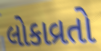
લોકાવ્રતો